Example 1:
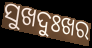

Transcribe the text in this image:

ସୁଖଦୁଃଖର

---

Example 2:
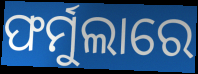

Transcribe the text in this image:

ଫର୍ମୁଲାରେ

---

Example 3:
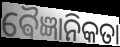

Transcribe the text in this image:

ଵୈଜ୍ଞାନିକତା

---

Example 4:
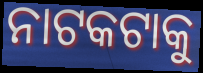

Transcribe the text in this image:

ନାଟକଟାକୁ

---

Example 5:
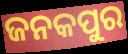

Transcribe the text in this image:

ଜନକପୁର